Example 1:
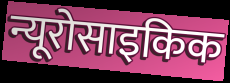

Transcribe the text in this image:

न्यूरोसाइकिक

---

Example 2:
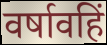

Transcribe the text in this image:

वर्षावहिं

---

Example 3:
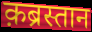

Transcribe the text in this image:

क़ब्रस्तान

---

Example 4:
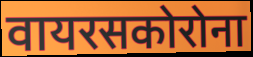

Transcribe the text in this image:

वायरसकोरोना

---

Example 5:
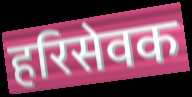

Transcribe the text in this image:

हरिसेवक